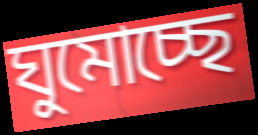
ঘুমোচ্ছে